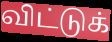
விட்டுக்